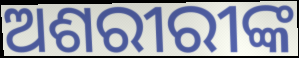
ଅଶରୀରୀଙ୍କ